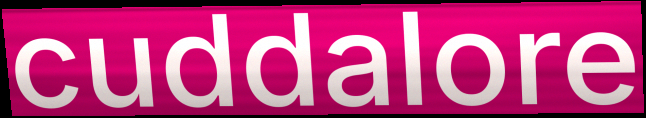
cuddalore